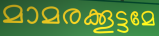
മാമരക്കൂട്ടമേ